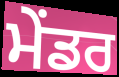
ਮੇਂਡਰ